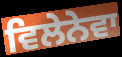
ਵਿਲੇਨੇਵਾ